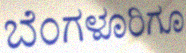
ಬೆಂಗಳೂರಿಗೂ